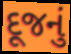
દૂજનું